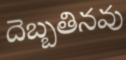
దెబ్బతినవు